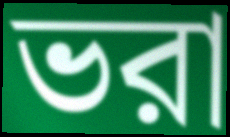
ভরা